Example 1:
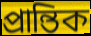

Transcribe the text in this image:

প্রান্তিক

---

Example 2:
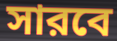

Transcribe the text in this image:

সারবে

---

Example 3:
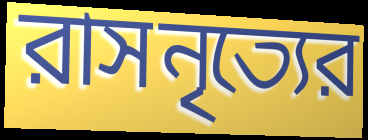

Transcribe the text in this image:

রাসনৃত্যের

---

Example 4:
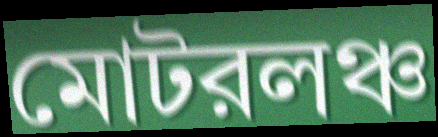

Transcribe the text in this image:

মোটরলঞ্চ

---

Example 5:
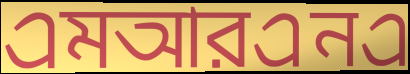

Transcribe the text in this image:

এমআরএনএ